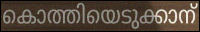
കൊത്തിയെടുക്കാന്